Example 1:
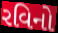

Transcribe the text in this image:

રવિનો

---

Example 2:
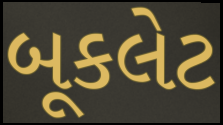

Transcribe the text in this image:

બૂકલેટ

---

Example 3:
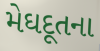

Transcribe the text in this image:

મેઘદૂતના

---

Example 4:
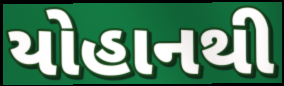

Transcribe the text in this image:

યોહાનથી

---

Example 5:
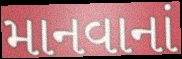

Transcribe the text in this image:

માનવાનાં